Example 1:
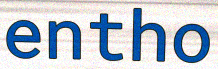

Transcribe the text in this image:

entho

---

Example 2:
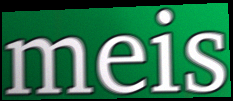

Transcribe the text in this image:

meis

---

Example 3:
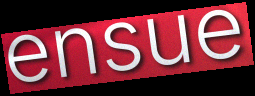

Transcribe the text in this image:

ensue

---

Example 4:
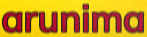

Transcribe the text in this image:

arunima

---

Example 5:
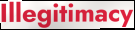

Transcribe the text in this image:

Illegitimacy